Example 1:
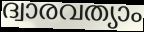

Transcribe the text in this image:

ദ്വാരവത്യാം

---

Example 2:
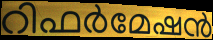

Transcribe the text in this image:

റിഫർമേഷൻ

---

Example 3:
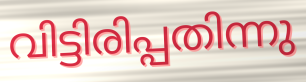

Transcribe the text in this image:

വിട്ടിരിപ്പതിന്നു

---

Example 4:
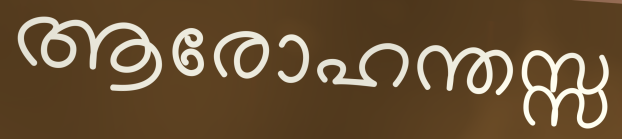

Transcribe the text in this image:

ആരോഹന്തസ്സ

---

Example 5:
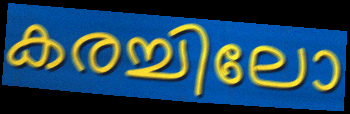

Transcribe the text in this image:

കരച്ചിലോ